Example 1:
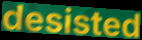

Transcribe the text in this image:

desisted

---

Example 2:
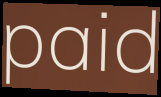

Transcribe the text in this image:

paid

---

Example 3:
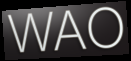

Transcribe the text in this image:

WAO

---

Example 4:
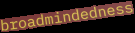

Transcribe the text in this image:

broadmindedness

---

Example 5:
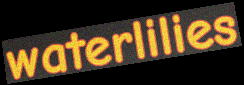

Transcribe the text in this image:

waterlilies